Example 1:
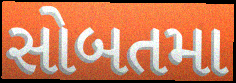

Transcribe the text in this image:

સોબતમા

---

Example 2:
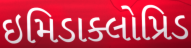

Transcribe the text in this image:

ઇમિડાક્લોપ્રિડ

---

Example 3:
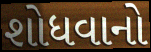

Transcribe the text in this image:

શોધવાનો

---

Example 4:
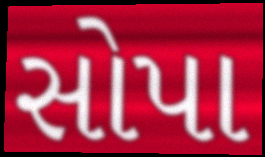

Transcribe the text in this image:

સોપા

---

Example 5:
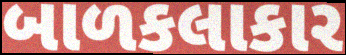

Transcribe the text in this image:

બાળકલાકાર